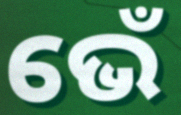
ଭେଁ